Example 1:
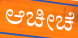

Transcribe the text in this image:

ಆಚೀಚೆ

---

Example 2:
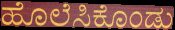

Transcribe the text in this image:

ಹೊಲೆಸಿಕೊಂಡು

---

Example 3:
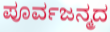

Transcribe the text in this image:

ಪೂರ್ವಜನ್ಮದ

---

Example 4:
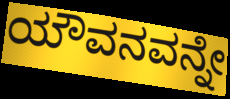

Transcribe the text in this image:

ಯೌವನವನ್ನೇ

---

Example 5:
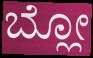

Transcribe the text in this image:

ಬ್ಲೋ